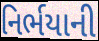
નિર્ભયાની